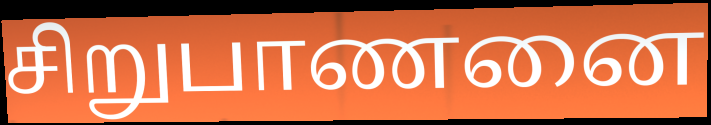
சிறுபாணனை